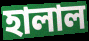
হালাল